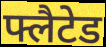
फ्लैटेड